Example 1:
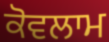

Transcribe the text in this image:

ਕੋਵਲਾਮ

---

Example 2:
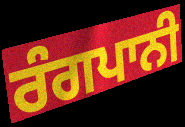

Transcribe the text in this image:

ਰੰਗਪਾਨੀ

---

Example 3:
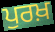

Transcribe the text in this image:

ਪੁਰਖ਼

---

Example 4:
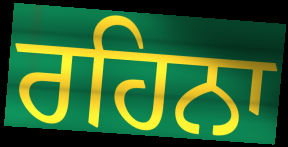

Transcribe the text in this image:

ਰਹਿਨਾ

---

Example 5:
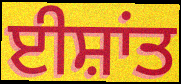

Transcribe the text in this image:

ਈਸ਼ਾਂਤ